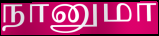
நானுமா